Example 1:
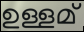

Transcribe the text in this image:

ഉള്ളമ്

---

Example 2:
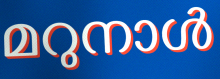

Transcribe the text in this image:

മറുനാൾ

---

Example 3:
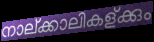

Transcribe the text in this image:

നാല്ക്കാലികള്ക്കും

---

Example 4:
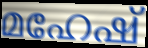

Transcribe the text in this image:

മഹേഷ്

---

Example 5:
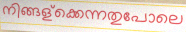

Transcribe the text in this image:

നിങ്ങള്ക്കെന്നതുപോലെ